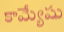
కామ్యేషు